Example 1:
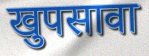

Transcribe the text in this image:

खुपसावा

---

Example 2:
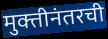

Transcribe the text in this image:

मुक्तीनंतरची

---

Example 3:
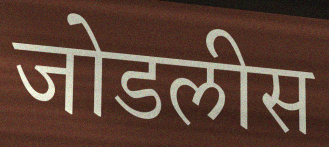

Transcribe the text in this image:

जोडलीस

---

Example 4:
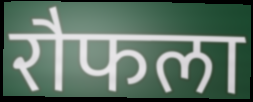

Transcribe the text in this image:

रौफला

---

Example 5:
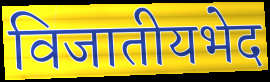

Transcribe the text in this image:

विजातीयभेद